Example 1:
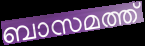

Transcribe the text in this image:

ബാസമത്ത്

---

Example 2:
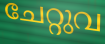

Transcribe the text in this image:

ചേറ്റുവ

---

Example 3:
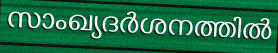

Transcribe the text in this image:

സാംഖ്യദർശനത്തിൽ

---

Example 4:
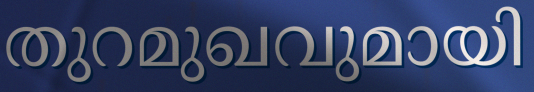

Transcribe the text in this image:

തുറമുഖവുമായി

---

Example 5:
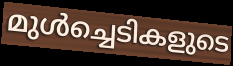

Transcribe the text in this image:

മുൾച്ചെടികളുടെ